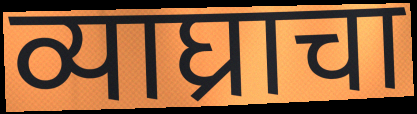
व्याघ्राचा